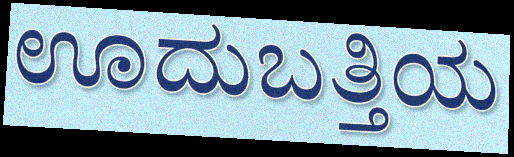
ಊದುಬತ್ತಿಯ